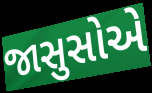
જાસુસોએ